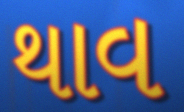
થાવ